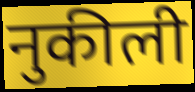
नुकीली